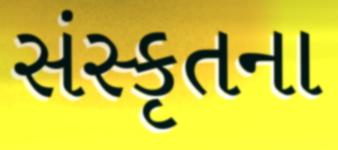
સંસ્‍કૃતના